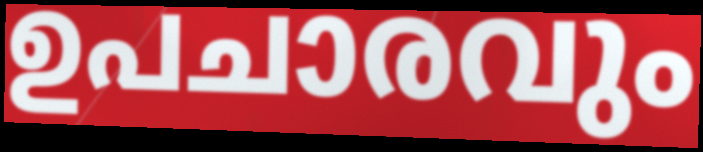
ഉപചാരവും